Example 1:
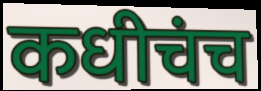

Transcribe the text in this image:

कधीचंच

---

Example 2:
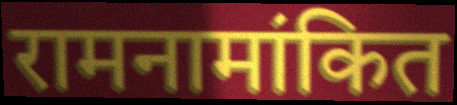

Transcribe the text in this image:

रामनामांकित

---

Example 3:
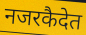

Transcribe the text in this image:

नजरकैदेत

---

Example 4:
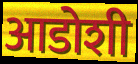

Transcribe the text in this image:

आडोशी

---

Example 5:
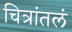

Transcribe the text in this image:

चित्रांतलं